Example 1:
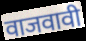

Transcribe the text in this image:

वाजवावी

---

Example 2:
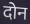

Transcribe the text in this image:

दोन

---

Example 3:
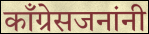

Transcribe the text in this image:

काँग्रेसजनांनी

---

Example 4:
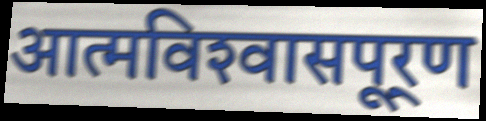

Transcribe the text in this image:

आत्मविश्वासपूर्ण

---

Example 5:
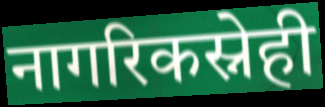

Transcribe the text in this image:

नागरिकस्नेही